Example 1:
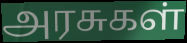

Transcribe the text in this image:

அரசுகள்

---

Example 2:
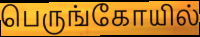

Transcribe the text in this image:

பெருங்கோயில்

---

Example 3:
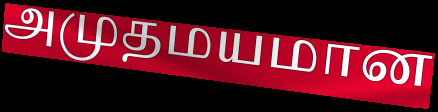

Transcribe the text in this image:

அமுதமயமான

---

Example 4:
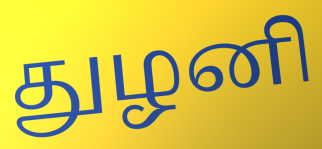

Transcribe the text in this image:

துழனி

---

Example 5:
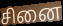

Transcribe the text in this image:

சினை